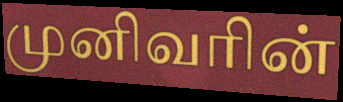
முனிவரின்